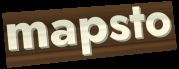
mapsto